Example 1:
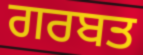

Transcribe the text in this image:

ਗਰਬਤ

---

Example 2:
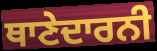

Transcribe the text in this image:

ਥਾਣੇਦਾਰਨੀ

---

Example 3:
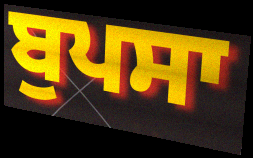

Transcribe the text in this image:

ਬੁਪਸਾ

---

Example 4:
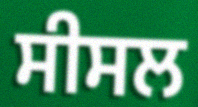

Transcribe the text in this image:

ਸੀਸਲ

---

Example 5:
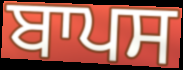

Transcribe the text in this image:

ਬਾਪਸ